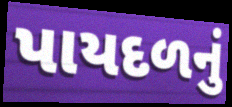
પાયદળનું